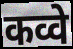
कव्वे